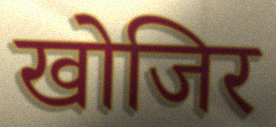
खोजिर